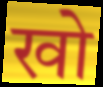
खो